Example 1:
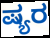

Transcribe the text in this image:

ಷ್ಯರ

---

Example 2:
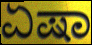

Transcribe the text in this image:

ಏಷಾ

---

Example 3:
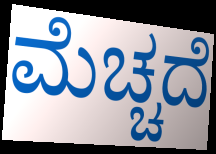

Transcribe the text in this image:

ಮೆಚ್ಚದೆ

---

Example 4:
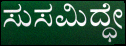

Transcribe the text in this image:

ಸುಸಮಿದ್ಧೇ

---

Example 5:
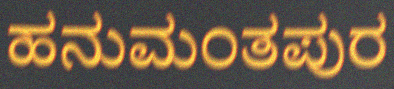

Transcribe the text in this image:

ಹನುಮಂತಪುರ